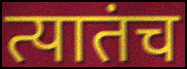
त्यातंच